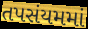
તપસંયમમાં